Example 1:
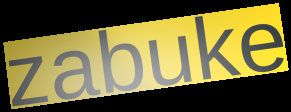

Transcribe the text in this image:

zabuke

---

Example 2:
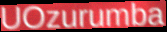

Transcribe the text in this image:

UOzurumba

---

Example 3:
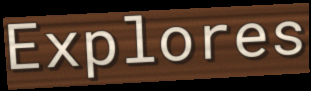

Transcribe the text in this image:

Explores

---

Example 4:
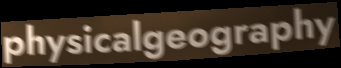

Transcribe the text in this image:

physicalgeography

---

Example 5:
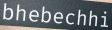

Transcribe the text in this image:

bhebechhi